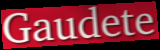
Gaudete